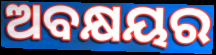
ଅବକ୍ଷୟର